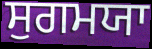
ਸੁਗਮਯਾ